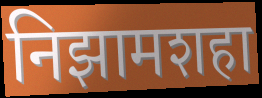
निझामशहा